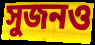
সুজনও